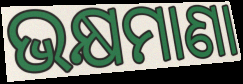
ଭକ୍ଷମାଣା